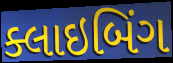
ક્લાઇબિંગ